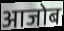
आजोब